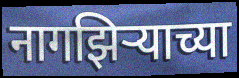
नागझिऱ्याच्या